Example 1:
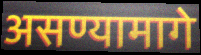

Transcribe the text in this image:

असण्यामागे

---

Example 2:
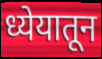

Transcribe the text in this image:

ध्येयातून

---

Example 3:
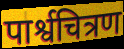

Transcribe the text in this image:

पार्श्वचित्रण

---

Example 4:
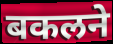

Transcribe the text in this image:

बकलने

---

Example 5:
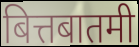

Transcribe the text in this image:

बित्तबातमी